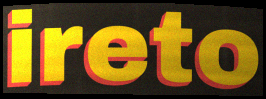
ireto